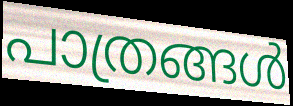
പാത്രങ്ങൾ